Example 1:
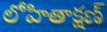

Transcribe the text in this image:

లోహితాక్షణ్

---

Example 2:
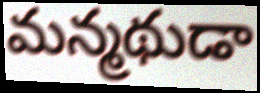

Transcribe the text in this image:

మన్మథుడా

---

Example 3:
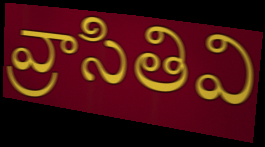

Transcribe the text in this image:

వ్రాసితివి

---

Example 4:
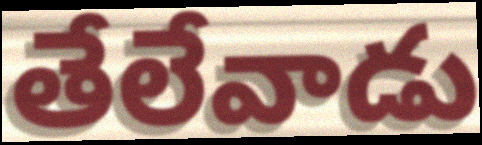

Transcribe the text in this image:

తేలేవాడు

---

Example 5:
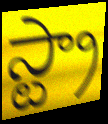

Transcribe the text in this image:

స్ట్రా